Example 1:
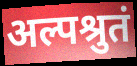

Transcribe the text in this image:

अल्पश्रुतं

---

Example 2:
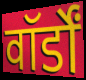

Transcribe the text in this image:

वॉर्डों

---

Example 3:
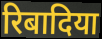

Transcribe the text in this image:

रिबादिया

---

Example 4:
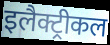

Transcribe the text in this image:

इलैक्ट्रीकल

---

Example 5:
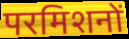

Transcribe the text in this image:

परमिशनों